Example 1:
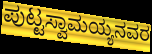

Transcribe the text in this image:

ಪುಟ್ಟಸ್ವಾಮಯ್ಯನವರ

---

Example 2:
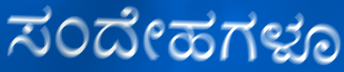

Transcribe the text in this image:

ಸಂದೇಹಗಳೂ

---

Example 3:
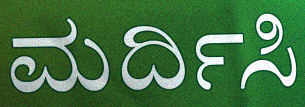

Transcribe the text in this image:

ಮರ್ದಿಸಿ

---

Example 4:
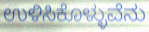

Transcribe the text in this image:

ಉಳಿಸಿಕೊಳ್ಳುವೆನು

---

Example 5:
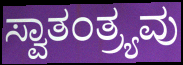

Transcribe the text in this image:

ಸ್ವಾತಂತ್ರ್ಯವು